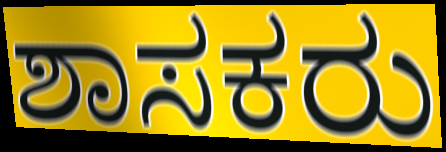
ಶಾಸಕರು